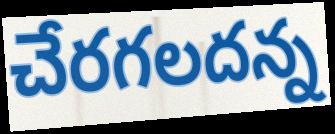
చేరగలదన్న